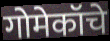
गोमेकॉचे